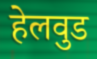
हेलवुड